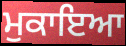
ਮੁਕਾਇਆ